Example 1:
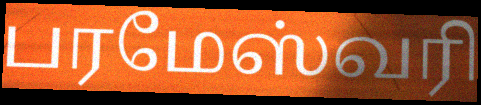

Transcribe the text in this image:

பரமேஸ்வரி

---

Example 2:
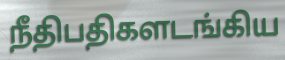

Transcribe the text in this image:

நீதிபதிகளடங்கிய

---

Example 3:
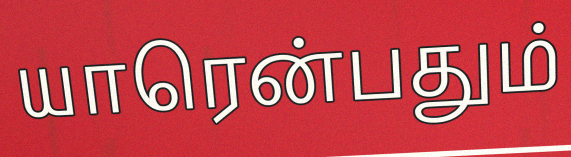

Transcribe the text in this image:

யாரென்பதும்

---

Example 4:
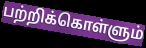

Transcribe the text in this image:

பற்றிக்கொள்ளும்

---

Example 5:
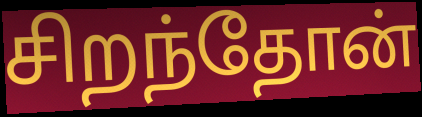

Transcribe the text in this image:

சிறந்தோன்